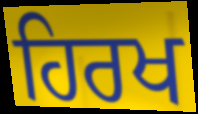
ਹਿਰਖ